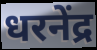
धरनेंद्र